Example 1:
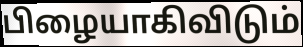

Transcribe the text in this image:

பிழையாகிவிடும்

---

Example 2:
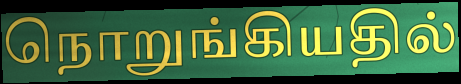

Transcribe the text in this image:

நொறுங்கியதில்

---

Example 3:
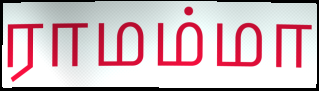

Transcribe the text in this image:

ராமம்மா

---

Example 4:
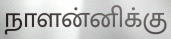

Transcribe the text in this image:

நாளன்னிக்கு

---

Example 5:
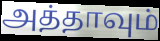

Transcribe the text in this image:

அத்தாவும்